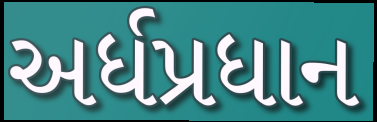
અર્ધપ્રધાન